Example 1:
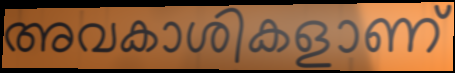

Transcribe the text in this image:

അവകാശികളാണ്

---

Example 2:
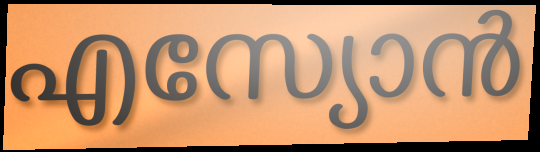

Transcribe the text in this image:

എസ്യോൻ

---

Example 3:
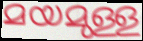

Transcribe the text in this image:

മയമുള്ള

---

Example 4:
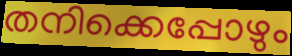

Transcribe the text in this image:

തനിക്കെപ്പോഴും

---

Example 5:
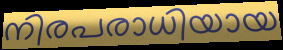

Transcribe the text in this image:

നിരപരാധിയായ